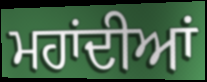
ਮਹਾਂਦੀਆਂ